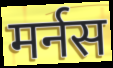
मर्नस